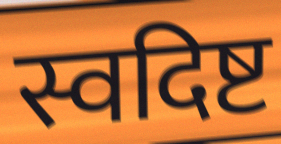
स्वदिष्ट